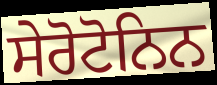
ਸੇਰੋਟੋਨਿਨ